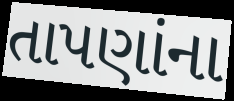
તાપણાંના